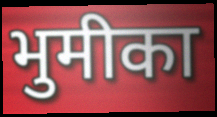
भुमीका